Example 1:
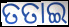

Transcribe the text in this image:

ତତାଇ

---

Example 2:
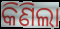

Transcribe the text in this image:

କିଣିଲା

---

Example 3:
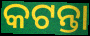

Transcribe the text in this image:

କଟନ୍ତା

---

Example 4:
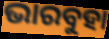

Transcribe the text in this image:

ଭାରବୁହା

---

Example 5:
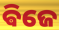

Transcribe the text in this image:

ଵିଜେ